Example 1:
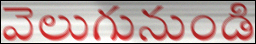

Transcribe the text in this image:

వెలుగునుండి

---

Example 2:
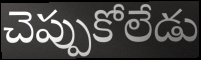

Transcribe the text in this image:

చెప్పుకోలేడు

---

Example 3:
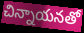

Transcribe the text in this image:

చిన్నాయనతో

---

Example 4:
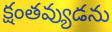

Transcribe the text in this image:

క్షంతవ్యుడను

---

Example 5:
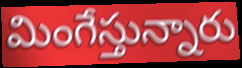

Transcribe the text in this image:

మింగేస్తున్నారు